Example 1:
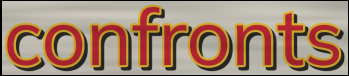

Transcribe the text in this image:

confronts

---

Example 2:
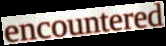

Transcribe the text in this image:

encountered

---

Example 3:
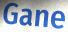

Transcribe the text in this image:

Gane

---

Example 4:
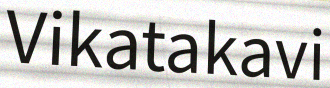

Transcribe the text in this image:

Vikatakavi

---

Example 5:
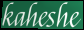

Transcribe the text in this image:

kaheshe